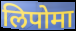
लिपोमा